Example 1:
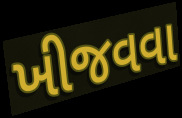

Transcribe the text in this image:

ખીજવવા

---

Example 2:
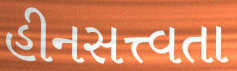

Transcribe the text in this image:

હીનસત્ત્વતા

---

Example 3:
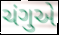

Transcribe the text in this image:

ચંગુએ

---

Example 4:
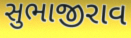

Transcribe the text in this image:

સુભાજીરાવ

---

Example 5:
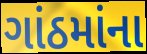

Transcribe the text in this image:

ગાંઠમાંના